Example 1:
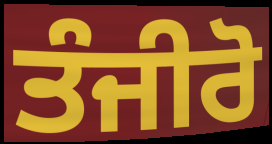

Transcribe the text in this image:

ਤੰਜੀਰੋ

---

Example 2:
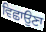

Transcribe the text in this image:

ਵਿਛਾਉਣਾ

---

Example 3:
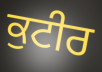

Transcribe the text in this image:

ਕੁਟੀਰ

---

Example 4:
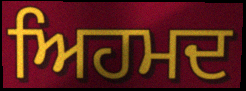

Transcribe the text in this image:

ਅਿਹਮਦ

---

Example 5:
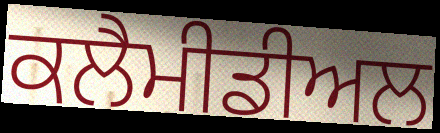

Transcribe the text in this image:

ਕਲੈਮੀਡੀਅਲ